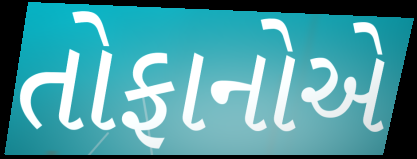
તોફાનોએ